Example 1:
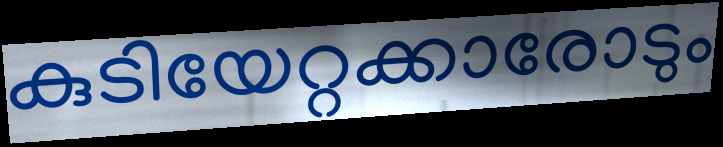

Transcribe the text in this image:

കുടിയേറ്റക്കാരോടും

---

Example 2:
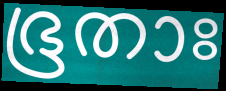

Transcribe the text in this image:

ഭൂതാഃ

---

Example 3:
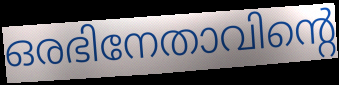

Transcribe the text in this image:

ഒരഭിനേതാവിന്റെ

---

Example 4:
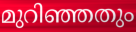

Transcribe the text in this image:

മുറിഞ്ഞതും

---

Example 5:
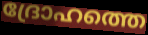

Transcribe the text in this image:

ദ്രോഹത്തെ